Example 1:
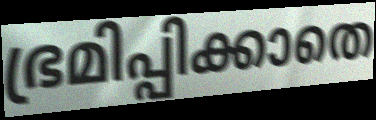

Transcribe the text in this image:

ഭ്രമിപ്പിക്കാതെ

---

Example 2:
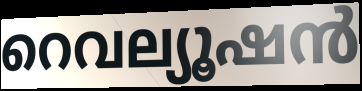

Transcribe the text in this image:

റെവല്യൂഷൻ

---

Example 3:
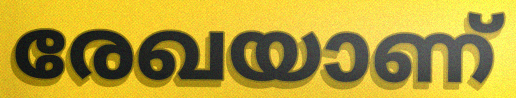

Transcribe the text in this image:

രേഖയാണ്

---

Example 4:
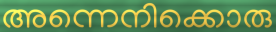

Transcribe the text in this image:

അന്നെനിക്കൊരു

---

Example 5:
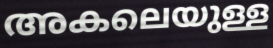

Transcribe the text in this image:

അകലെയുള്ള